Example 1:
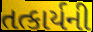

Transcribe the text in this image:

તત્કાર્યની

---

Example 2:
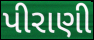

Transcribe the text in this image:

પીરાણી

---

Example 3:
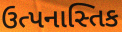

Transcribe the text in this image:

ઉત્પનાસ્તિક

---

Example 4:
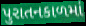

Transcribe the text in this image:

પુરાતનકાળમાં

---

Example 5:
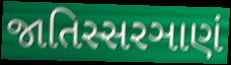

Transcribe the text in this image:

જાતિસ્સરઞાણં